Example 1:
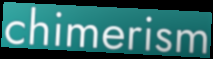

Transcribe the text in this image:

chimerism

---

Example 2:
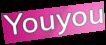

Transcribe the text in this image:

Youyou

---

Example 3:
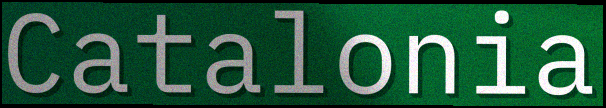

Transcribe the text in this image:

Catalonia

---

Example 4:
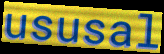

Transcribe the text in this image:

ususal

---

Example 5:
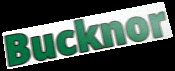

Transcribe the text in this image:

Bucknor